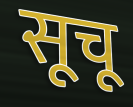
सूचू